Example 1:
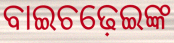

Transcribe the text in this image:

ବାଇଚଢ଼େଇଙ୍କ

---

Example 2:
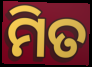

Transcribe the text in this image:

ମିତ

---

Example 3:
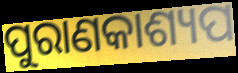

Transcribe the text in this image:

ପୁରାଣକାଶ୍ୟପ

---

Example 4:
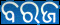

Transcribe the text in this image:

ବରଜ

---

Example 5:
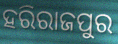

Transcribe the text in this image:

ହରିରାଜପୁର